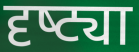
दृष्ट्या